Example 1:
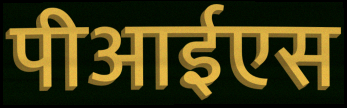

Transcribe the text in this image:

पीआईएस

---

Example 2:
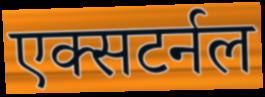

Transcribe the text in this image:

एक्सटर्नल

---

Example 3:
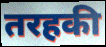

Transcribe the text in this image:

तरहकी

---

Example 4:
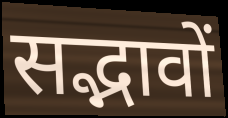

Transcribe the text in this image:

सद्भावों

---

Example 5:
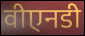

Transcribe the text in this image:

वीएनडी